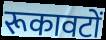
रूकावटों